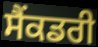
ਸੈਂਕਡਰੀ